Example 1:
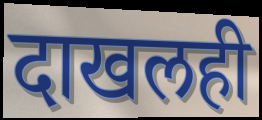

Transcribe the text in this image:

दाखलही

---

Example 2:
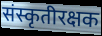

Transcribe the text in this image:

संस्कृतीरक्षक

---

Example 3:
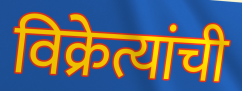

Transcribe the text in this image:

विक्रेत्यांची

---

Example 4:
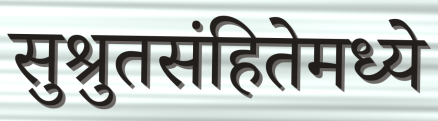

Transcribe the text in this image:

सुश्रुतसंहितेमध्ये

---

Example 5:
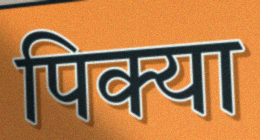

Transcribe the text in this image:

पिक्या